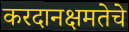
करदानक्षमतेचे